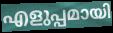
എളുപ്പമായി